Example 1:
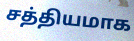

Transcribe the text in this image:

சத்தியமாக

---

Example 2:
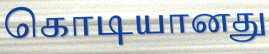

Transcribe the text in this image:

கொடியானது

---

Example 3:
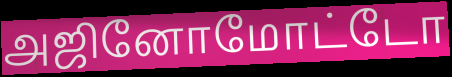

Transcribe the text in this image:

அஜினோமோட்டோ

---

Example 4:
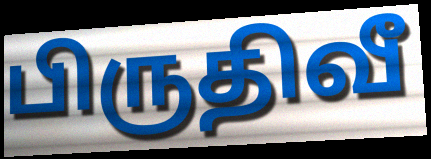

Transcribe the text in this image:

பிருதிவீ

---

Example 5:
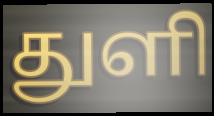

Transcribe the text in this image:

துளி